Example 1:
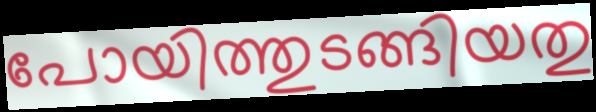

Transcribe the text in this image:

പോയിത്തുടങ്ങിയതു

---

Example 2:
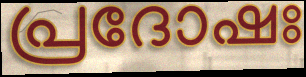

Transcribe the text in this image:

പ്രദോഷഃ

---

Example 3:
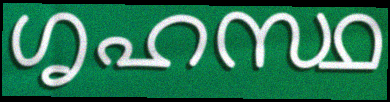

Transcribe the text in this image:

ഗൃഹസ്ഥ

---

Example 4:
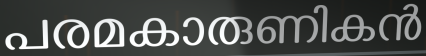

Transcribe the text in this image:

പരമകാരുണികൻ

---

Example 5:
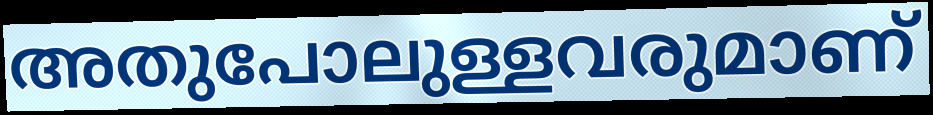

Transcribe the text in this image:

അതുപോലുള്ളവരുമാണ്